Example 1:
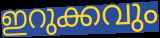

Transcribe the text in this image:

ഇറുക്കവും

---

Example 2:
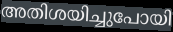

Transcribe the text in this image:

അതിശയിച്ചുപോയി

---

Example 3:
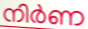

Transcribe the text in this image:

നിർണ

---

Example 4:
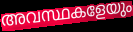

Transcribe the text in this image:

അവസ്ഥകളേയും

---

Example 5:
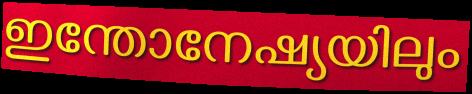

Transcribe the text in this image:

ഇന്തോനേഷ്യയിലും